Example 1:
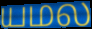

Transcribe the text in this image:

யமல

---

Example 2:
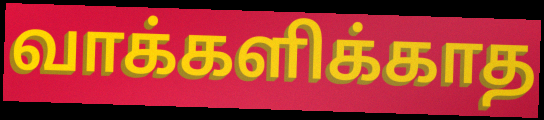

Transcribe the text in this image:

வாக்களிக்காத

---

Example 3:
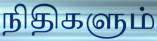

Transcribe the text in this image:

நிதிகளும்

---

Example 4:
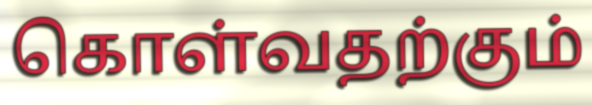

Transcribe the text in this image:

கொள்வதற்கும்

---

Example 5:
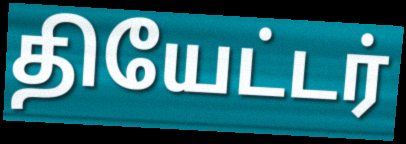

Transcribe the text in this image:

தியேட்டர்